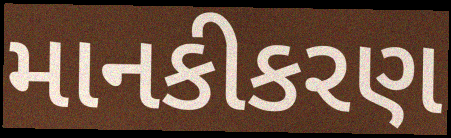
માનકીકરણ